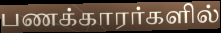
பணக்காரர்களில்